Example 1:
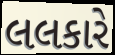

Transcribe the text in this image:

લલકારે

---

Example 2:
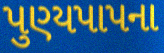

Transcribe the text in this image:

પુણ્યપાપના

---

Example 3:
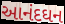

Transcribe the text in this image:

આનંદઘન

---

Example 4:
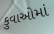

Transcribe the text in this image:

કુવાઓમાં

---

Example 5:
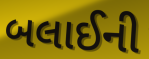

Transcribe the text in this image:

બલાઈની